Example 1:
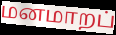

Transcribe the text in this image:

மனமாறப்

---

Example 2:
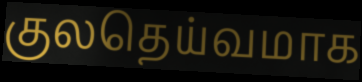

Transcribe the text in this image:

குலதெய்வமாக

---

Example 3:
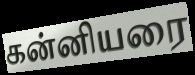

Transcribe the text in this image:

கன்னியரை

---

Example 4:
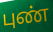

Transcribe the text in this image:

புண்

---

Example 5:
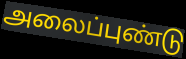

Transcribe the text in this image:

அலைப்புண்டு